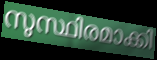
സുസ്ഥിരമാക്കി